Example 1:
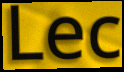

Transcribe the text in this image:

Lec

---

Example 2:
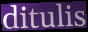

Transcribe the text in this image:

ditulis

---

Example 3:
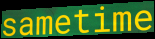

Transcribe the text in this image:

sametime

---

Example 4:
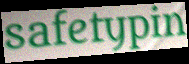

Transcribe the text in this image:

safetypin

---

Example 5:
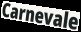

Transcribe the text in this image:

Carnevale